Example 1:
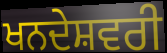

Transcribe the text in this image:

ਖਨਦੇਸ਼ਵਰੀ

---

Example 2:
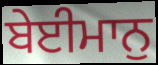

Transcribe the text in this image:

ਬੇਈਮਾਨੁ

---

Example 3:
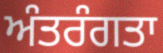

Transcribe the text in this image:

ਅੰਤਰੰਗਤਾ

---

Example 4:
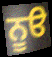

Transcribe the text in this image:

ਨੂੳ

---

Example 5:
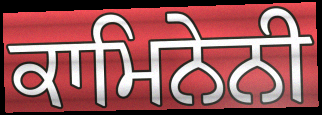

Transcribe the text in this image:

ਕਾਮਿਨੇਨੀ